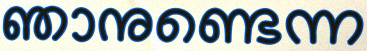
ഞാനുണ്ടെന്ന